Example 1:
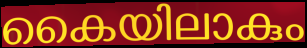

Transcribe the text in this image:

കൈയിലാകും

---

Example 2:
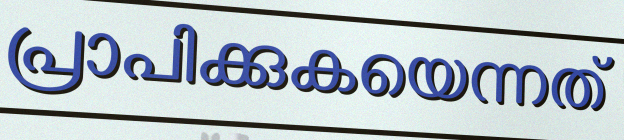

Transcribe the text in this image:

പ്രാപിക്കുകയെന്നത്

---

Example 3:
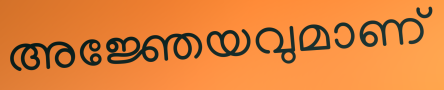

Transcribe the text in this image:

അജ്ഞേയവുമാണ്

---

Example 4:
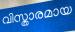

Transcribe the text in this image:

വിസ്താരമായ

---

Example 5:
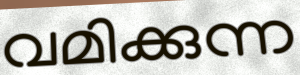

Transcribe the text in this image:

വമിക്കുന്ന